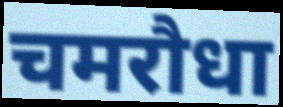
चमरौधा